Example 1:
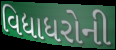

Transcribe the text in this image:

વિદ્યાધરોની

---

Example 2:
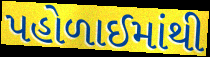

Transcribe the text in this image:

પહોળાઈમાંથી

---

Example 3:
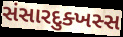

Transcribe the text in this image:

સંસારદુક્ખસ્સ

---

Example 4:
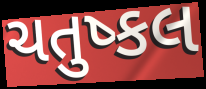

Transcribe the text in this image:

ચતુષ્કલ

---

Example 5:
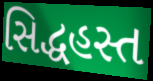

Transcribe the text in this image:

સિદ્ધહસ્ત